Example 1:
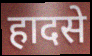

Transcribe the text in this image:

हादसे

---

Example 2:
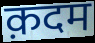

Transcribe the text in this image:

क़दम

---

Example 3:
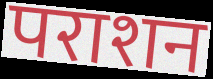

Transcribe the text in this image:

पराशन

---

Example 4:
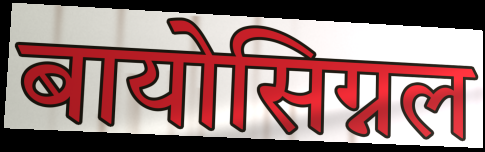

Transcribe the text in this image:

बायोसिग्नल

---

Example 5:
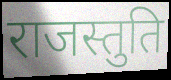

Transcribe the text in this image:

राजस्तुति